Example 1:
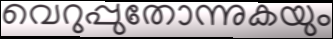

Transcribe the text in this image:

വെറുപ്പുതോന്നുകയും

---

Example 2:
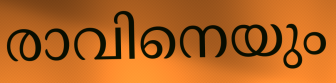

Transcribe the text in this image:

രാവിനെയും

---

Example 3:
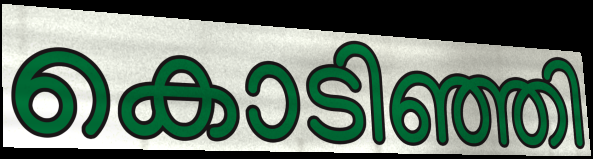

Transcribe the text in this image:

കൊടിഞ്ഞി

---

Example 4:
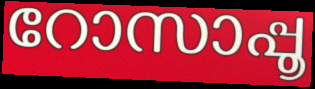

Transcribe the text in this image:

റോസാപ്പൂ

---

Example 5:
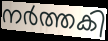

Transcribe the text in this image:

നർത്തകി